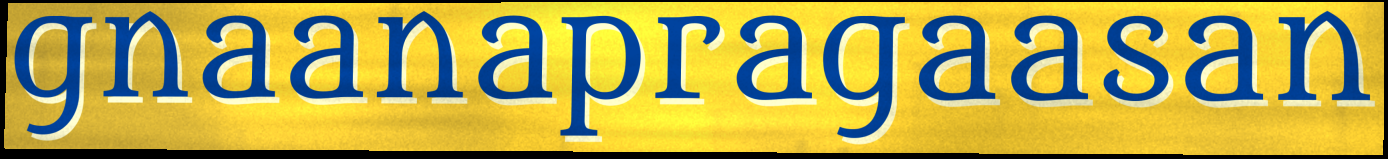
gnaanapragaasan